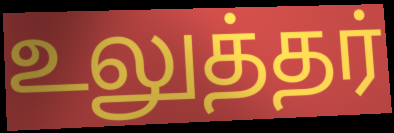
உலுத்தர்